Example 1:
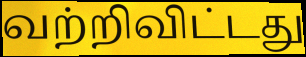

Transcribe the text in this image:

வற்றிவிட்டது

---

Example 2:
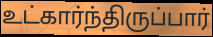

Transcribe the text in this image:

உட்கார்ந்திருப்பார்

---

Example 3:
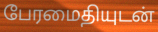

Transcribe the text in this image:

பேரமைதியுடன்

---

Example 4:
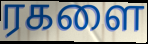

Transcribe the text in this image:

ரகளை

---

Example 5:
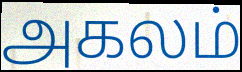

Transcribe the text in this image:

அகலம்